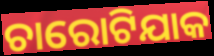
ଚାରୋଟିଯାକ